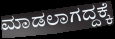
ಮಾಡಲಾಗದ್ದಕ್ಕೆ